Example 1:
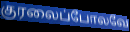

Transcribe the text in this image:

குரலைப்போலவே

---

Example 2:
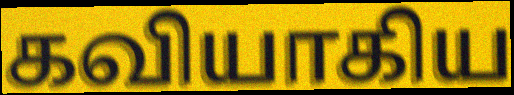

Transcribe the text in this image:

கவியாகிய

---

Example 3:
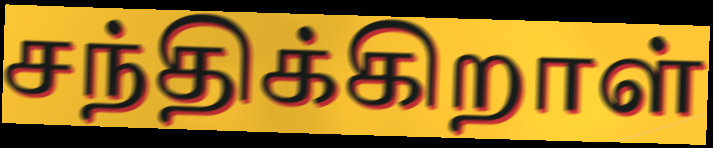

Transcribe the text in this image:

சந்திக்கிறாள்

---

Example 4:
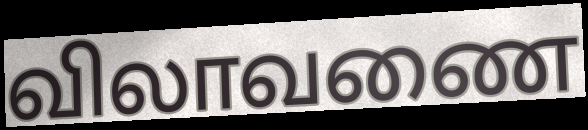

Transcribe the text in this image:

விலாவணை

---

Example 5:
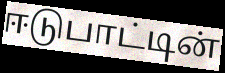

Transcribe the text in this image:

ஈடுபாட்டின்